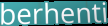
berhenti